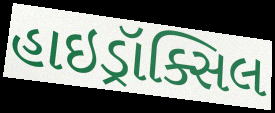
હાઇડ્રૉક્સિલ